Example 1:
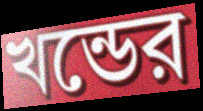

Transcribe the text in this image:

খন্ডের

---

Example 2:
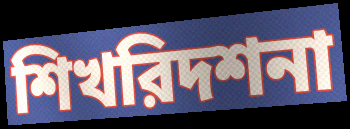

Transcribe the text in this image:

শিখরিদশনা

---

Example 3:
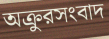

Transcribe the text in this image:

অক্রুরসংবাদ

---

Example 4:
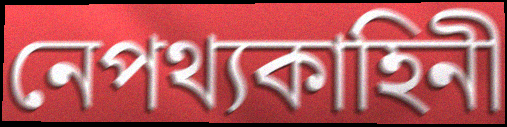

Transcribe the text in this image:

নেপথ্যকাহিনী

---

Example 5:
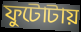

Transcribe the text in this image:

ফুটোটায়